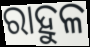
ରାହୁଳ